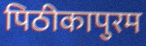
पिठीकापुरम